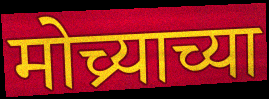
मोच्र्याच्या